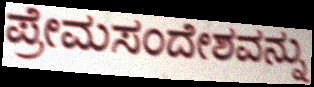
ಪ್ರೇಮಸಂದೇಶವನ್ನು